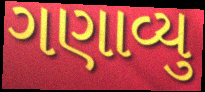
ગણાવ્યુ